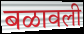
बळावली